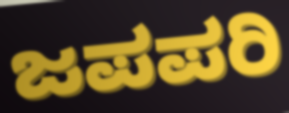
ಜಪಪರಿ